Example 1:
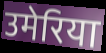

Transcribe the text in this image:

उमेरिया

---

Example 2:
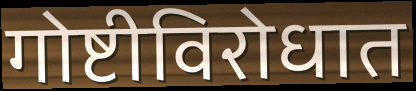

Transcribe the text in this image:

गोष्टीविरोधात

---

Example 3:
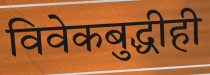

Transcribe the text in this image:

विवेकबुद्धीही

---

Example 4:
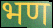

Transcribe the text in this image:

भण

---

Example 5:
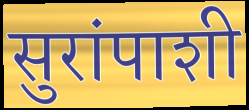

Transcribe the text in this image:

सुरांपाशी